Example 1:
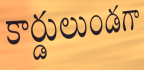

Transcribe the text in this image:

కార్డులుండగా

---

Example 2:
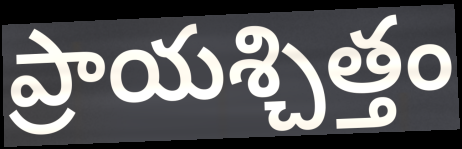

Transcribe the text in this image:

ప్రాయశ్చిత్తం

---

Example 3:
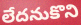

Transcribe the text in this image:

లేదనుకొని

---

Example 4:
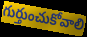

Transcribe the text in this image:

గుర్తుంచుకోవాలి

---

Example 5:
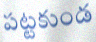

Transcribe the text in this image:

పట్టకుండ